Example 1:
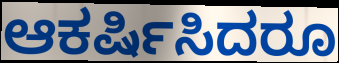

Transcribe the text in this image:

ಆಕರ್ಷಿಸಿದರೂ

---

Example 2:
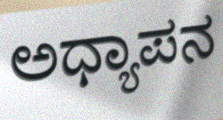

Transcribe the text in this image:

ಅಧ್ಯಾಪನ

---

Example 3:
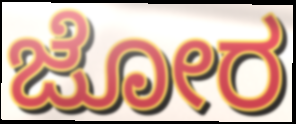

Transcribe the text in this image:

ಜೋರ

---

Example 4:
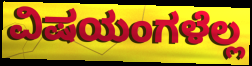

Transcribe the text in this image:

ವಿಷಯಂಗಳೆಲ್ಲ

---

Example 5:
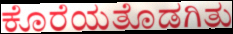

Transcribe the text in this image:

ಕೊರೆಯತೊಡಗಿತು